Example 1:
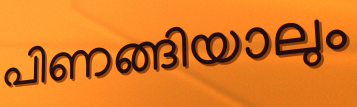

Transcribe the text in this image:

പിണങ്ങിയാലും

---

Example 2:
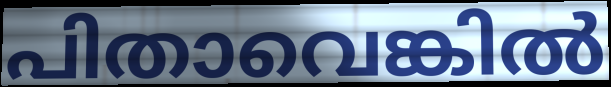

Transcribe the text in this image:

പിതാവെങ്കിൽ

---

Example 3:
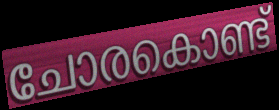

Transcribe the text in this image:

ചോരകൊണ്ട്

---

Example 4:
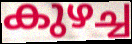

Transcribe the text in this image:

കുഴച്ച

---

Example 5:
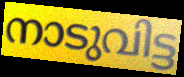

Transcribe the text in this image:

നാടുവിട്ട